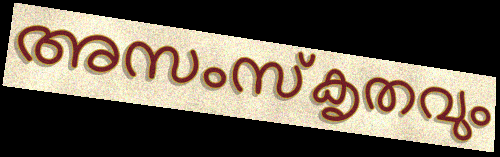
അസംസ്കൃതവും